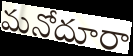
మనోదూరా